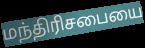
மந்திரிசபையை